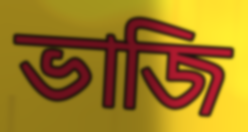
ভাজি